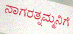
ನಾಗರತ್ನಮ್ಮನಿಗೆ